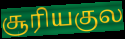
சூரியகுல